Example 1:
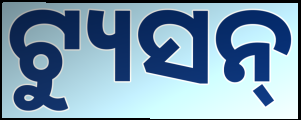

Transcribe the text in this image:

ଟ୍ୟୁସନ୍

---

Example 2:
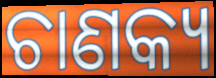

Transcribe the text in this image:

ଚାଣକ୍ଯ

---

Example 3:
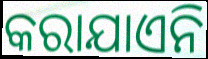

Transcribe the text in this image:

କରାଯାଏନି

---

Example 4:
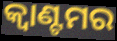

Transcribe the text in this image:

କ୍ୱାଣ୍ଟମର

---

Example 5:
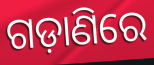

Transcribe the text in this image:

ଗଡ଼ାଣିରେ